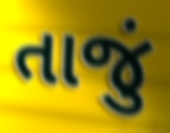
તાજું